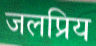
जलप्रिय